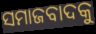
ସମାଜବାଦକୁ